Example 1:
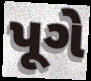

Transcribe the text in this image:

પૂગે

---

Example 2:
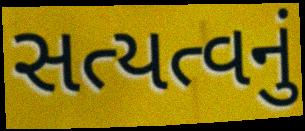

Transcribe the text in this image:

સત્યત્વનું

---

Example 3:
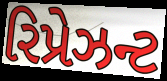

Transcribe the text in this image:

રિપ્રેઝન્ટ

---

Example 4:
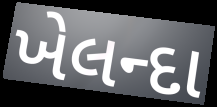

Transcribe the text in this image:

ખેલન્દા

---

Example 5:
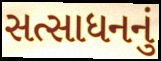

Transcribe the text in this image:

સત્સાધનનું